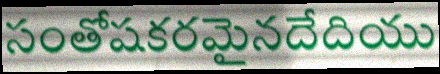
సంతోషకరమైనదేదియు